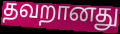
தவறானது